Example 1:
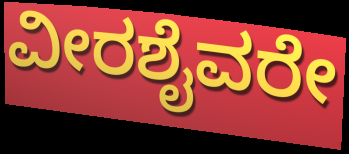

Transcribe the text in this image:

ವೀರಶೈವರೇ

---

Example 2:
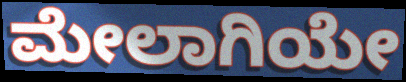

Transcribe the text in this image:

ಮೇಲಾಗಿಯೇ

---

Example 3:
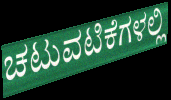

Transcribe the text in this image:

ಚಟುವಟಿಕೆಗಳಲ್ಲಿ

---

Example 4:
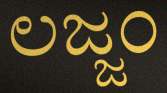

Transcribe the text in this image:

ಲಜ್ಜಂ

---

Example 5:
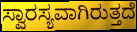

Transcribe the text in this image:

ಸ್ವಾರಸ್ಯವಾಗಿರುತ್ತದೆ